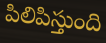
పిలిపిస్తుంది